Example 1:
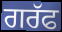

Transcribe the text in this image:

ਗਰੱਫ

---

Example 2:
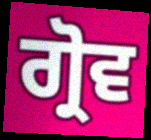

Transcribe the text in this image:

ਗ੍ਰੋਵ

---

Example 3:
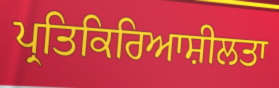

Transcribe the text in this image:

ਪ੍ਰਤਿਕਿਰਿਆਸ਼ੀਲਤਾ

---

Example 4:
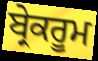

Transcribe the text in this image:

ਬ੍ਰੇਕਰੂਮ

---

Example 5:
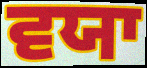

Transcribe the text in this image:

ਵਯਾ